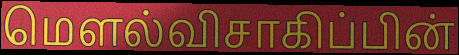
மௌல்விசாகிப்பின்